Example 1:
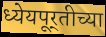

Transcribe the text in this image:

ध्येयपूर्तीच्या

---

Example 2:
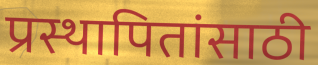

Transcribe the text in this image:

प्रस्थापितांसाठी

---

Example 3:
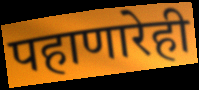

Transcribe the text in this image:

पहाणारेही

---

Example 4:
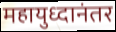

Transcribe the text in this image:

महायुध्दानंतर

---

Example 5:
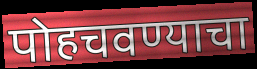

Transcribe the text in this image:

पोहचवण्याचा